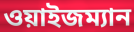
ওয়াইজম্যান